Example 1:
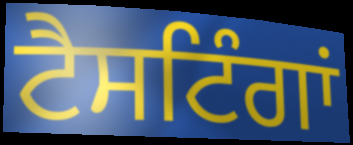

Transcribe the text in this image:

ਟੈਸਟਿੰਗਾਂ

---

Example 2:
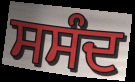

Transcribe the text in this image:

ਸਸੰਦ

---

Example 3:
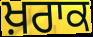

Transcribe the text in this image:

ਖ਼ਰਾਕ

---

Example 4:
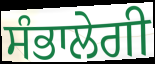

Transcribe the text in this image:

ਸੰਭਾਲੇਗੀ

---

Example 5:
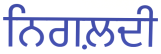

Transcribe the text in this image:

ਨਿਗਲ਼ਦੀ